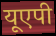
यूएपी